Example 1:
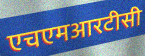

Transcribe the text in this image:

एचएमआरटीसी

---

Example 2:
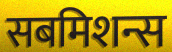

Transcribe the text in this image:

सबमिशन्स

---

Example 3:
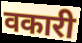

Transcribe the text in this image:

वकारी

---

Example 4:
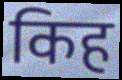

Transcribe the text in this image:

किह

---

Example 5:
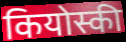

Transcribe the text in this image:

कियोस्की